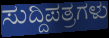
ಸುದ್ದಿಪತ್ರಗಳು